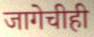
जागेचीही